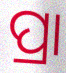
ପ୍ରା